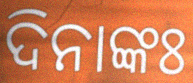
ଦିନାଙ୍କଃ